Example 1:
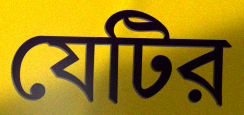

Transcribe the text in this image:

যেটির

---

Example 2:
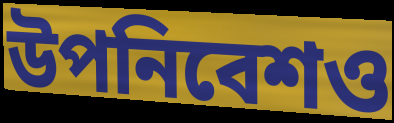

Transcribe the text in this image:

উপনিবেশও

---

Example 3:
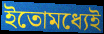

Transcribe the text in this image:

ইতোমধ্যেই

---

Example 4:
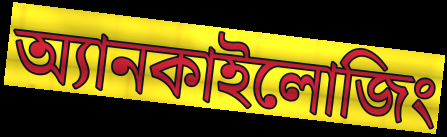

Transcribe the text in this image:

অ্যানকাইলোজিং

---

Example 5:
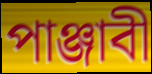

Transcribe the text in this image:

পাঞ্জাবী